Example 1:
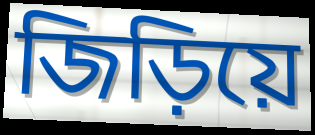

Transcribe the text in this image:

জিড়িয়ে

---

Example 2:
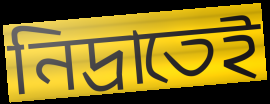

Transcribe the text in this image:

নিদ্রাতেই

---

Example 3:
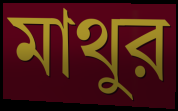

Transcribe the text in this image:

মাথুর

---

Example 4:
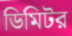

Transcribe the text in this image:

ডিমিটর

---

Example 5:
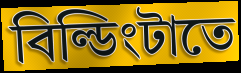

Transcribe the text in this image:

বিল্ডিংটাতে